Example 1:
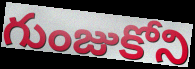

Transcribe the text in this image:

గుంజుకోని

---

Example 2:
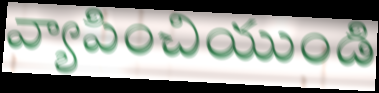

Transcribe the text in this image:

వ్యాపించియుండి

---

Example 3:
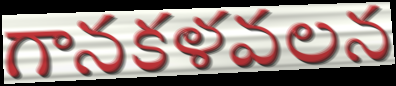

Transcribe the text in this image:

గానకళవలన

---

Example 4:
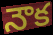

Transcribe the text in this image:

నౌక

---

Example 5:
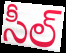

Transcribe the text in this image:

సీల్